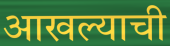
आखल्याची